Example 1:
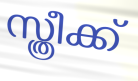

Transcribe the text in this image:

സ്ത്രീക്ക്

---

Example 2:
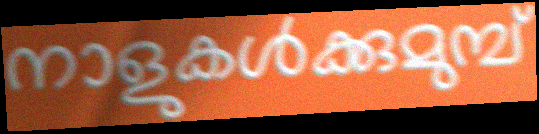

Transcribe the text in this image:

നാളുകൾക്കുമുമ്പ്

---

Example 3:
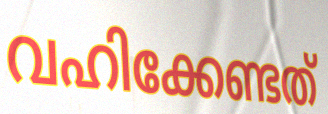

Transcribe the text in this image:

വഹിക്കേണ്ടത്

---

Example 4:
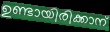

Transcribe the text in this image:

ഉണ്ടായിരിക്കാന്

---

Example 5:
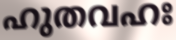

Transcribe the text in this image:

ഹുതവഹഃ